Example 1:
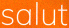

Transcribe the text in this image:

salut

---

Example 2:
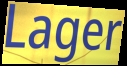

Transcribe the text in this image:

Lager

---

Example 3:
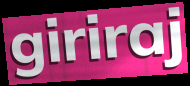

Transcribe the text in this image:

giriraj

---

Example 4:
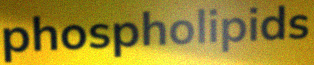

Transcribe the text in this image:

phospholipids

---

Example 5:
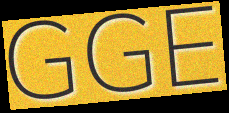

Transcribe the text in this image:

GGE